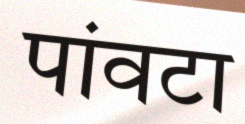
पांवटा